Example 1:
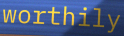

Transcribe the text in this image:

worthily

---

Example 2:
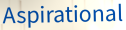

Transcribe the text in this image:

Aspirational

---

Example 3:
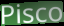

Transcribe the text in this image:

Pisco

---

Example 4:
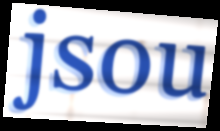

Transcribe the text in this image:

jsou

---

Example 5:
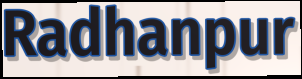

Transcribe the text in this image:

Radhanpur